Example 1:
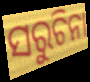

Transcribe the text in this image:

ସରୁଚିନା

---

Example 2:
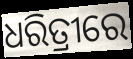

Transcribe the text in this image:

ଧରିତ୍ରୀରେ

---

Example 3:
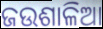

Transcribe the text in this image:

ଜଉଶାଳିଆ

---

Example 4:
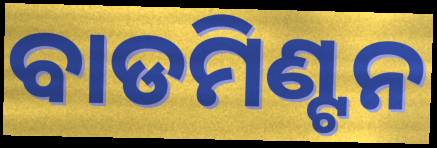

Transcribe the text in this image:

ବାଡମିଣ୍ଟନ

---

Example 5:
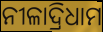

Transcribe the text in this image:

ନୀଳାଦ୍ରିଧାମ